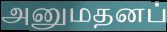
அனுமதனப்